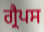
ਗ੍ਰੈਪਸ